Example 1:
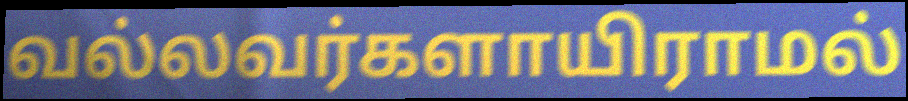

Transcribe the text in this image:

வல்லவர்களாயிராமல்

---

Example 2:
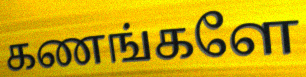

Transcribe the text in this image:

கணங்களே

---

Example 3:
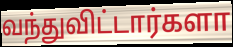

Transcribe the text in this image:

வந்துவிட்டார்களா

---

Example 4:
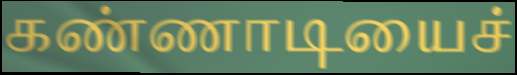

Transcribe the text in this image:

கண்ணாடியைச்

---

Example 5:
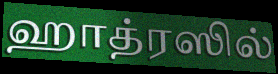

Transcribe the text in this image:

ஹாத்ரஸில்